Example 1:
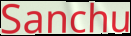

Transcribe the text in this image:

Sanchu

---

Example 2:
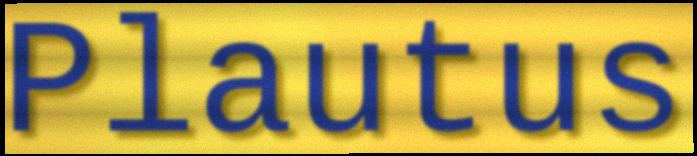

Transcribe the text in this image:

Plautus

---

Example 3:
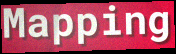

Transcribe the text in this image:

Mapping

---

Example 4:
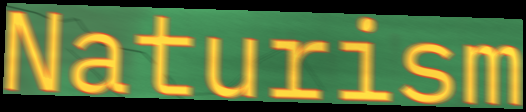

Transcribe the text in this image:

Naturism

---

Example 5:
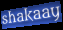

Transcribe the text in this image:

shakaay